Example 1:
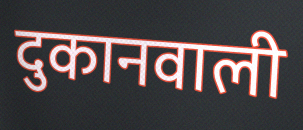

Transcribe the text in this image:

दुकानवाली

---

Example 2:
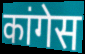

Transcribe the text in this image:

कांगेस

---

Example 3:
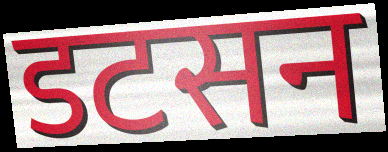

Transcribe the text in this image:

डटसन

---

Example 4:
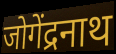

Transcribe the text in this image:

जोगेंद्रनाथ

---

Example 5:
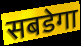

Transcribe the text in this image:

सबडेगा